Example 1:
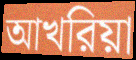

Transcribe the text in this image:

আখরিয়া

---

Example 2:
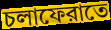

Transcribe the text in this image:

চলাফেরাতে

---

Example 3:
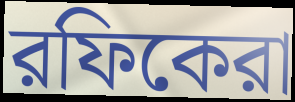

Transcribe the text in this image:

রফিকেরা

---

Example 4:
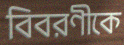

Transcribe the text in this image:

বিবরণীকে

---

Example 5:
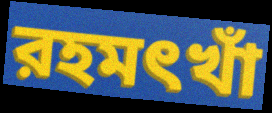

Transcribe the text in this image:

রহমৎখাঁ